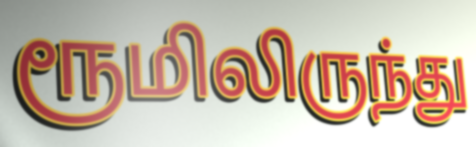
ரூமிலிருந்து